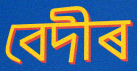
বেদীৰ